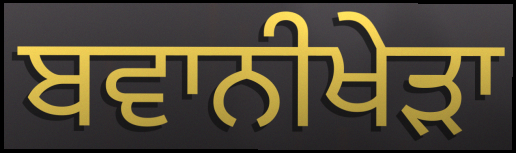
ਬਵਾਨੀਖੇੜਾ